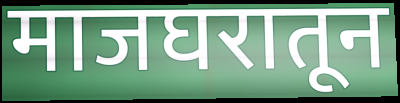
माजघरातून